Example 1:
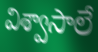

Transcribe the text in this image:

విశ్వాసాలే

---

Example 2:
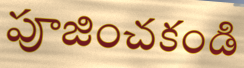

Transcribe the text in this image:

పూజించకండి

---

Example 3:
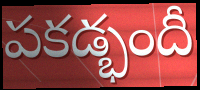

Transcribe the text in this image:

పకడ్భందీ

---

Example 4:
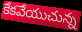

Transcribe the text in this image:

కేకవేయుచున్న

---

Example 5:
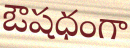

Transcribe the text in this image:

ఔషధంగా